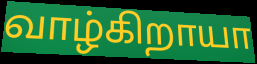
வாழ்கிறாயா